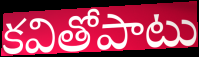
కవితోపాటు